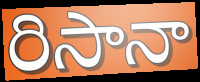
రిసానా